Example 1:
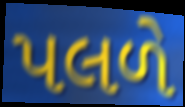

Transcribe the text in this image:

પલળે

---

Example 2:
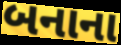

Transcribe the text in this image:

બનાના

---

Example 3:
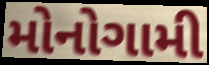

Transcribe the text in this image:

મોનોગામી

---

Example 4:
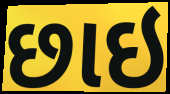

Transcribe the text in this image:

છાઇ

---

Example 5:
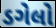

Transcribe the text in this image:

ડગેલો